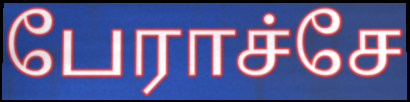
பேராச்சே